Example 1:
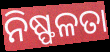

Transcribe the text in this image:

ନିଷ୍ଫଳତା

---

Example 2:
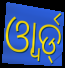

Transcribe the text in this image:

ଓ୍ୱାର୍ଡ୍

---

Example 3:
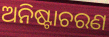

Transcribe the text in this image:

ଅନିଷ୍ଟାଚରଣ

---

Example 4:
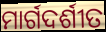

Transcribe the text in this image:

ମାର୍ଗଦର୍ଶୀତ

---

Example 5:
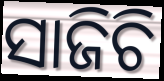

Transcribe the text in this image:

ସାଜିଚି